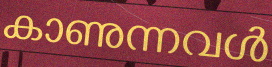
കാണുന്നവൾ